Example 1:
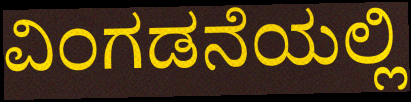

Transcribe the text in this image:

ವಿಂಗಡನೆಯಲ್ಲಿ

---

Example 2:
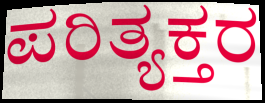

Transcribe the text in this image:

ಪರಿತ್ಯಕ್ತರ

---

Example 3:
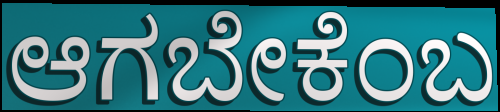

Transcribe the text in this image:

ಆಗಬೇಕೆಂಬ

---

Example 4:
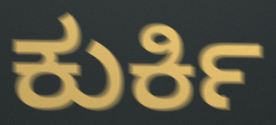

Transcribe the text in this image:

ಕುರ್ಕಿ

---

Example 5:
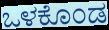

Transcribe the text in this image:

ಒಳಕೊಂಡ